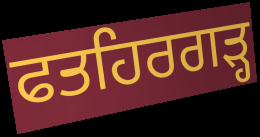
ਫਤਹਿਰਗੜ੍ਹ